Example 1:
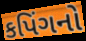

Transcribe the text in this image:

કપિંગનો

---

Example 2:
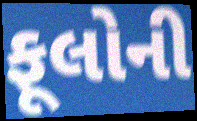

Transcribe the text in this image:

ફૂલોની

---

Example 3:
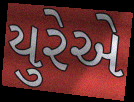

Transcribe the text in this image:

યુરેએ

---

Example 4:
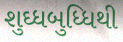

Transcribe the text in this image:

શુઘ્ધબુધ્ધિથી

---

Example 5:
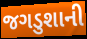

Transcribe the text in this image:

જગડુશાની